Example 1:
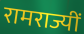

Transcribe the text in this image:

रामराज्यीं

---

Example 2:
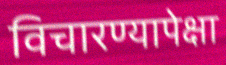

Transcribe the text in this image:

विचारण्यापेक्षा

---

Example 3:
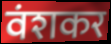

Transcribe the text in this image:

वंशकर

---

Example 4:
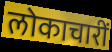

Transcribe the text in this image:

लोकाचारीं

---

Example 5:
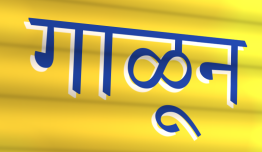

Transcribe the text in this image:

गाळून